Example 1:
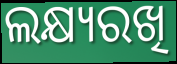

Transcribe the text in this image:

ଲକ୍ଷ୍ୟରଖି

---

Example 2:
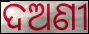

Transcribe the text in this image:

ଦଅଣୀ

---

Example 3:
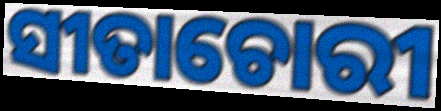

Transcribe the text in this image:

ସୀତାଚୋରୀ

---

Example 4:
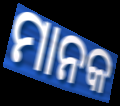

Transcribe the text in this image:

ମାନକ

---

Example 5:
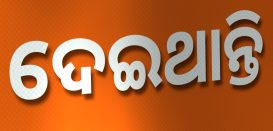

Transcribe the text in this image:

ଦେଇଥାନ୍ତି